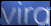
vira